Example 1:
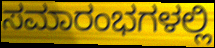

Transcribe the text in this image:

ಸಮಾರಂಭಗಳಲ್ಲಿ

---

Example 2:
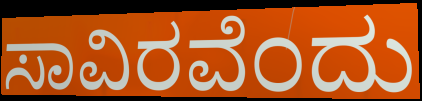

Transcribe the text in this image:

ಸಾವಿರವೆಂದು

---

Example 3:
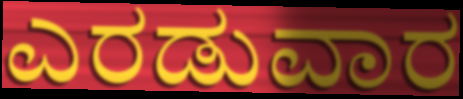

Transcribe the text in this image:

ಎರಡುವಾರ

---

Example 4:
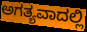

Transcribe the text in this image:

ಅಗತ್ಯವಾದಲ್ಲಿ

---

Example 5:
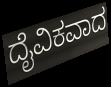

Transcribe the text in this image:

ದೈವಿಕವಾದ